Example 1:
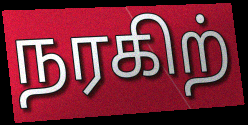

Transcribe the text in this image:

நரகிற்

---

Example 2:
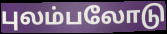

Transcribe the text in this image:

புலம்பலோடு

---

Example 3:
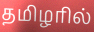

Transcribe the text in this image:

தமிழரில்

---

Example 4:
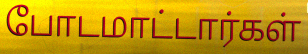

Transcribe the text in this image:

போடமாட்டார்கள்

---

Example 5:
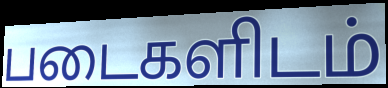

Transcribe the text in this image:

படைகளிடம்